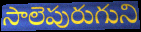
సాలెపురుగుని